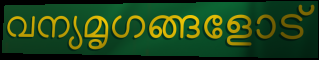
വന്യമൃഗങ്ങളോട്